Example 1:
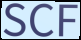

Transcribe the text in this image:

SCF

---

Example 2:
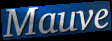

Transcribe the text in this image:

Mauve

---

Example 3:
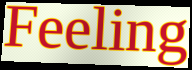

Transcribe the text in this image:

Feeling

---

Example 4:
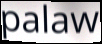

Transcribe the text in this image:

palaw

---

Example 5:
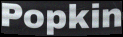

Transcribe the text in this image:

Popkin